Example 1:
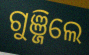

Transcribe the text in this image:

ଗୁଞ୍ଜିଲେ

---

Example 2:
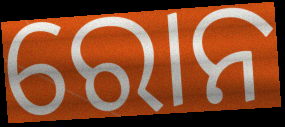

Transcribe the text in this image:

ରୋନ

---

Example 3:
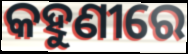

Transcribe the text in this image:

କହୁଣୀରେ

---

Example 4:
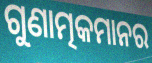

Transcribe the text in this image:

ଗୁଣାତ୍ମକମାନର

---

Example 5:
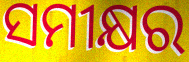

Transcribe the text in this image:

ସମୀକ୍ଷର